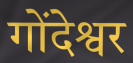
गोंदेश्वर